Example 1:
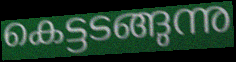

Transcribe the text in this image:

കെട്ടടങ്ങുന്നു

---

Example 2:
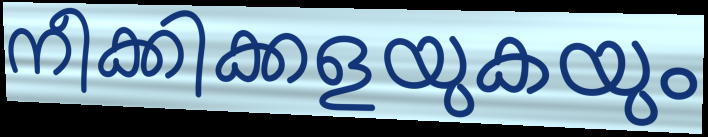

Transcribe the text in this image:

നീക്കിക്കളയുകയും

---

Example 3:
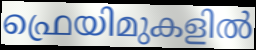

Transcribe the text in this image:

ഫ്രെയിമുകളിൽ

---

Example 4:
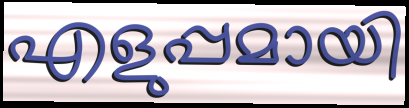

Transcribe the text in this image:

എളുപ്പമായി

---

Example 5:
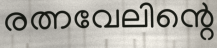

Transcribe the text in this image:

രത്നവേലിന്റെ